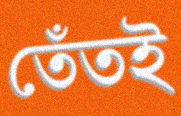
তেঁতই